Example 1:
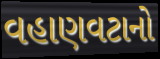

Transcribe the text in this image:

વહાણવટાનો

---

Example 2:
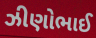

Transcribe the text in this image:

ઝીણોભાઈ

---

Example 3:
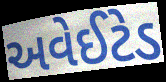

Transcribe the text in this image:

અવેઈટેડ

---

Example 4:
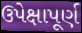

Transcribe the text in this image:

ઉપેક્ષાપૂર્ણ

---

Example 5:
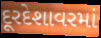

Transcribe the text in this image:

દૂરદેશાવરમાં